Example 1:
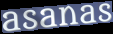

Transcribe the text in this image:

asanas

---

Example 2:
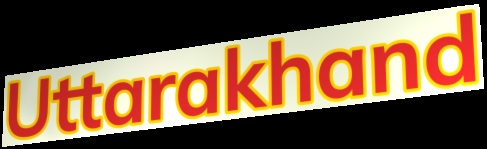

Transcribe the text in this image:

Uttarakhand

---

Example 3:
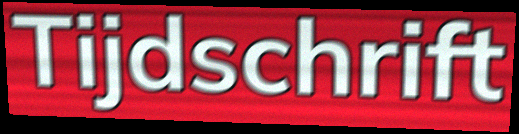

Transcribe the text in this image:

Tijdschrift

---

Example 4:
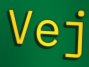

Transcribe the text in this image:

Vej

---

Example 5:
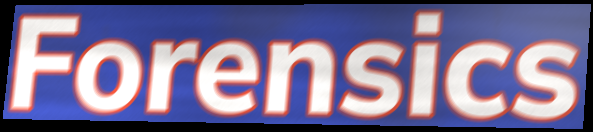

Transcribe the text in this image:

Forensics